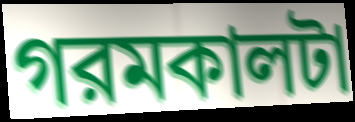
গরমকালটা